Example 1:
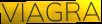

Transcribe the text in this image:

VIAGRA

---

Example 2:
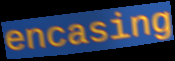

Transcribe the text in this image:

encasing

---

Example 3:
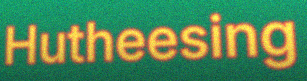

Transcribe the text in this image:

Hutheesing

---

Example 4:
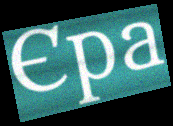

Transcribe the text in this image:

Epa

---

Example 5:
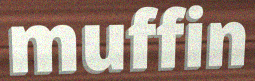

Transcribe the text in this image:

muffin